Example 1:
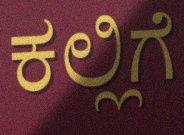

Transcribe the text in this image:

ಕಲ್ಲಿಗೆ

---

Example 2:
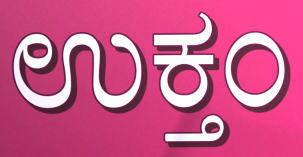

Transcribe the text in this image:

ಉಕ್ತಂ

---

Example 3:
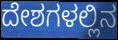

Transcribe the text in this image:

ದೇಶಗಳಲ್ಲಿನ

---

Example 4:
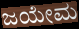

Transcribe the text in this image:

ಜಯೇಮ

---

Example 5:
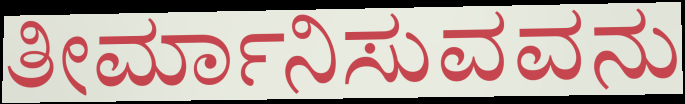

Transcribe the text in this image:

ತೀರ್ಮಾನಿಸುವವನು